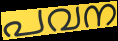
പവന